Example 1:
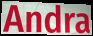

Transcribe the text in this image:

Andra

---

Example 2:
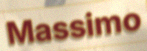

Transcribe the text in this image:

Massimo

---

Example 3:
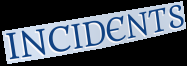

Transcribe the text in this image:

INCIDENTS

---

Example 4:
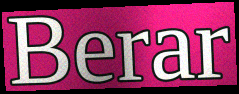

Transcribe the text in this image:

Berar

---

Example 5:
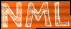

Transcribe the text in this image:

NML